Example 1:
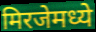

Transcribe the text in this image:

मिरजेमध्ये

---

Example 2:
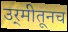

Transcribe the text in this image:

उर्मीतूनच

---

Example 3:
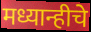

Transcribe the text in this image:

मध्यान्हीचे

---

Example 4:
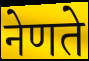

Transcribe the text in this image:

नेणते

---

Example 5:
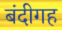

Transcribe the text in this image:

बंदीगह